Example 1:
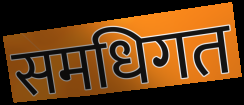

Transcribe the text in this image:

समधिगत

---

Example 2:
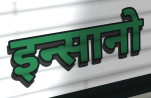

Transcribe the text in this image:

इन्सानो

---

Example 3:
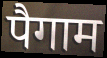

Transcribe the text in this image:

पैगाम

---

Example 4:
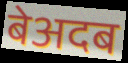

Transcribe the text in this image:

बेअदब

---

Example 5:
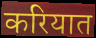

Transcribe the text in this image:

करियात